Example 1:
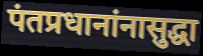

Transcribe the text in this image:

पंतप्रधानांनासुद्धा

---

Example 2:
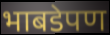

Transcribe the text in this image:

भाबडेपण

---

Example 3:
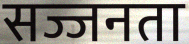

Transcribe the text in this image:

सज्जनता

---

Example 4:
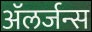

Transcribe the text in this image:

ॲलर्जन्स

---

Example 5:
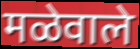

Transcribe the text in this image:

मळेवाले